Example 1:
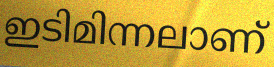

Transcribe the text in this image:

ഇടിമിന്നലാണ്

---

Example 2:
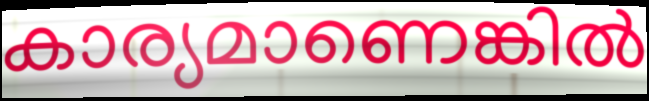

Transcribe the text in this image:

കാര്യമാണെങ്കിൽ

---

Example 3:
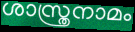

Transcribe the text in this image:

ശാസ്ത്രനാമം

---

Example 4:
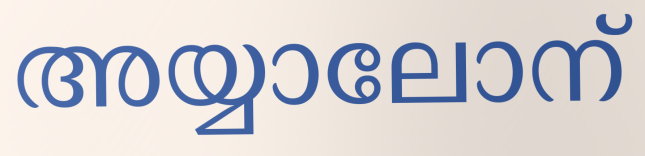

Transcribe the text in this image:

അയ്യാലോന്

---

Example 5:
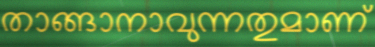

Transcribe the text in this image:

താങ്ങാനാവുന്നതുമാണ്